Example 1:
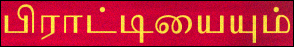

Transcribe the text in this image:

பிராட்டியையும்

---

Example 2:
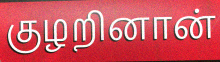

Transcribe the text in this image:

குழறினான்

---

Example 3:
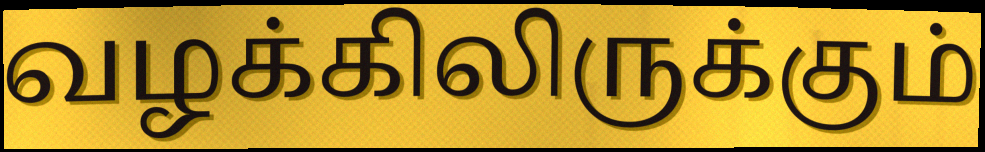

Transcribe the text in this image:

வழக்கிலிருக்கும்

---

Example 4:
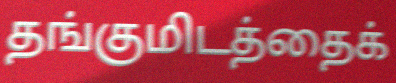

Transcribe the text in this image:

தங்குமிடத்தைக்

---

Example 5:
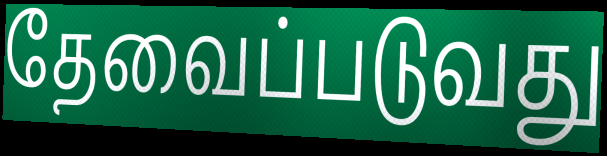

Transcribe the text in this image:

தேவைப்படுவது